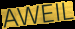
AWEIL